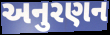
અનુરણન